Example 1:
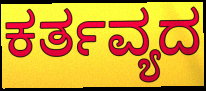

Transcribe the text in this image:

ಕರ್ತವ್ಯದ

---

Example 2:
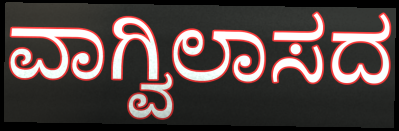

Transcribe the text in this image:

ವಾಗ್ವಿಲಾಸದ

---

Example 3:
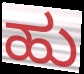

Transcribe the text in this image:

ಹು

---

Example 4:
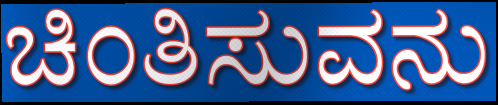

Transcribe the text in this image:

ಚಿಂತಿಸುವನು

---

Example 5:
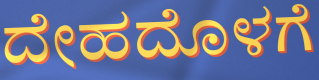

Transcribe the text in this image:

ದೇಹದೊಳಗೆ